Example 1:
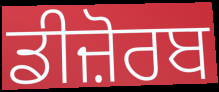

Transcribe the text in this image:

ਡੀਜ਼ੋਰਬ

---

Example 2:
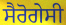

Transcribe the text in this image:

ਸੈਰੋਗੇਸੀ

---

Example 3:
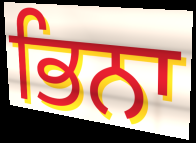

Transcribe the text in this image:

ਭਿਨਾ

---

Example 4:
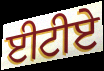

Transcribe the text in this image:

ਈਟੀਏ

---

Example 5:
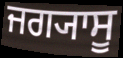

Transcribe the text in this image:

ਜਗ੍ਯਾਸੂ